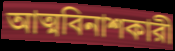
আত্মবিনাশকারী